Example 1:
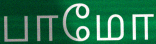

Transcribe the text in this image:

பாமோ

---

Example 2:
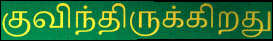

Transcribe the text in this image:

குவிந்திருக்கிறது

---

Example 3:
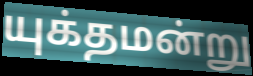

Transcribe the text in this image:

யுக்தமன்று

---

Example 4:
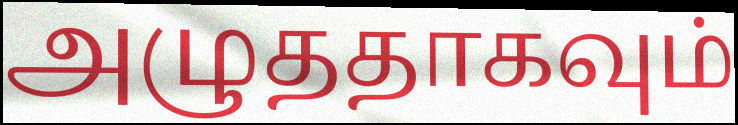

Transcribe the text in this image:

அழுததாகவும்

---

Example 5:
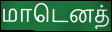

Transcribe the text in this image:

மாடெனத்